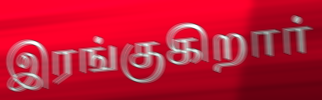
இரங்குகிறார்